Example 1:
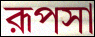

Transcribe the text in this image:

রূপসা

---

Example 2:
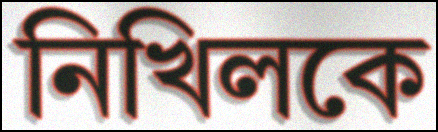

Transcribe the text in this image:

নিখিলকে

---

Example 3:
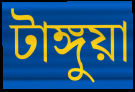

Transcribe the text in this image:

টাঙ্গুয়া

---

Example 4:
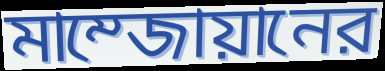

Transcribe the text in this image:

মাম্জোয়ানের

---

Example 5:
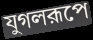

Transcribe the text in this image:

যুগলরূপে